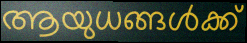
ആയുധങ്ങൾക്ക്